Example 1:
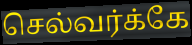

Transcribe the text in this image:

செல்வர்க்கே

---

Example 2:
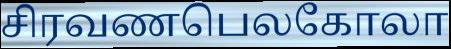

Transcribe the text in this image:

சிரவணபெலகோலா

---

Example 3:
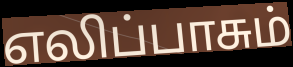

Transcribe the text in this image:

எலிப்பாசும்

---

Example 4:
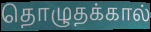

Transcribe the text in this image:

தொழுதக்கால்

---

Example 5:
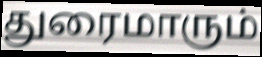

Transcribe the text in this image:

துரைமாரும்